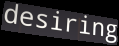
desiring